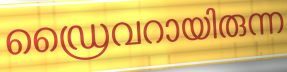
ഡ്രൈവറായിരുന്ന